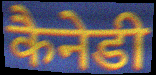
कैनेडी